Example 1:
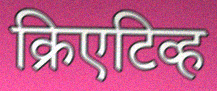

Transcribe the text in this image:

क्रिएटिव्ह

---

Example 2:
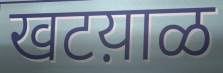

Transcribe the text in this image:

खटय़ाळ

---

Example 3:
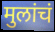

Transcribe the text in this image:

मुलांचं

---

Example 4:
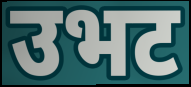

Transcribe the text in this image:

उभट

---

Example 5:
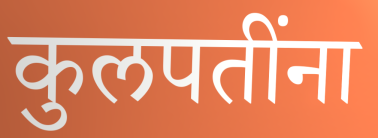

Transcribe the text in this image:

कुलपतींना